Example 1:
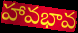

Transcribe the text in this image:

హావభావ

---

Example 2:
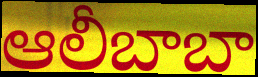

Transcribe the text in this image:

ఆలీబాబా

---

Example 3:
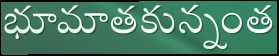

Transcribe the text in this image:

భూమాతకున్నంత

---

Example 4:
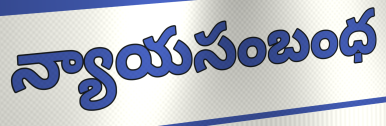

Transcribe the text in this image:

న్యాయసంబంధ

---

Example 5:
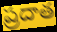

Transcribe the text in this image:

ప్రదాత